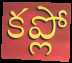
కప్లో